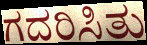
ಗದರಿಸಿತು